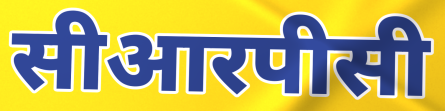
सीआरपीसी